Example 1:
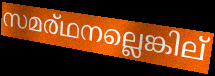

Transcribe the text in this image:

സമര്ഥനല്ലെങ്കില്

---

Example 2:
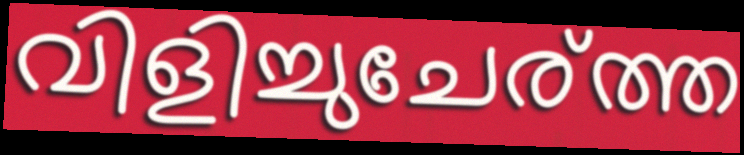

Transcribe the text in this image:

വിളിച്ചുചേര്ത്ത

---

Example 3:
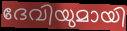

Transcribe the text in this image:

ദേവിയുമായി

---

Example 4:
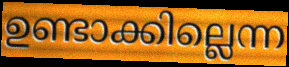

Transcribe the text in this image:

ഉണ്ടാക്കില്ലെന്ന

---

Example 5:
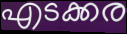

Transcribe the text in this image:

എടക്കര